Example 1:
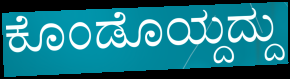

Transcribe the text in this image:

ಕೊಂಡೊಯ್ದದ್ದು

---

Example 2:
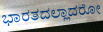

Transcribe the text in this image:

ಭಾರತದಲ್ಲಾದರೋ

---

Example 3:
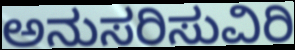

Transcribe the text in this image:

ಅನುಸರಿಸುವಿರಿ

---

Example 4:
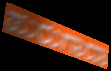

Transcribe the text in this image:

ಹುರುಗಾದಾ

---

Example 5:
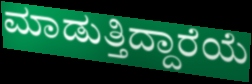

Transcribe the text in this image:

ಮಾಡುತ್ತಿದ್ದಾರೆಯೆ